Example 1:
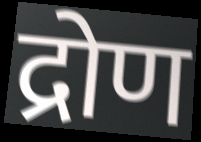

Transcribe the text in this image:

द्रोण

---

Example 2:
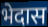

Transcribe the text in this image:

भेदास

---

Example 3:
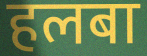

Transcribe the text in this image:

हलबा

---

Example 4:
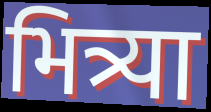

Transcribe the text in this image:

भित्र्या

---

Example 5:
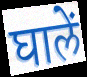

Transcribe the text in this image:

घालें